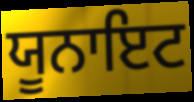
ਯੂਨਾਇਟ